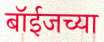
बॉईजच्या